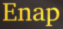
Enap